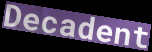
Decadent